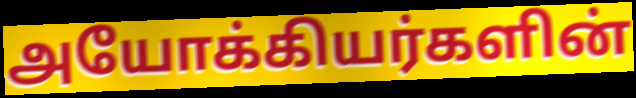
அயோக்கியர்களின்